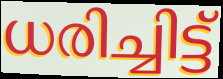
ധരിച്ചിട്ട്